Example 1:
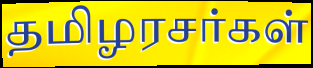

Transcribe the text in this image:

தமிழரசர்கள்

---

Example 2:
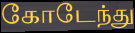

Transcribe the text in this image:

கோடேந்து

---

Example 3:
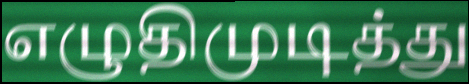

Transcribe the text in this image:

எழுதிமுடித்து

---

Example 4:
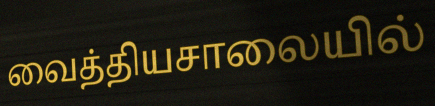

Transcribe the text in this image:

வைத்தியசாலையில்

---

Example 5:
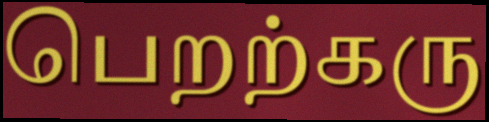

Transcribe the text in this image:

பெறற்கரு